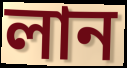
লান